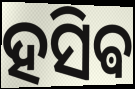
ହସିଵ